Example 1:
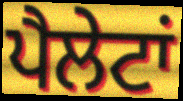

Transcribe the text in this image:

ਪੈਲੇਟਾਂ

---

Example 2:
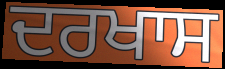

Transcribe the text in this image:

ਦਰਖਾਸ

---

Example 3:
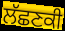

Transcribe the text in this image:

ਲੱਛਣਕੀ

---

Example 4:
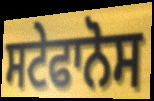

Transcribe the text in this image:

ਸਟੇਫਾਨੋਸ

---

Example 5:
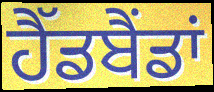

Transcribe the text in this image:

ਹੈੱਡਬੈਂਡਾਂ